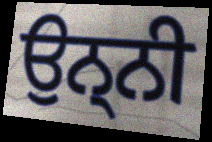
ਉਨ੍ਨੀ